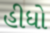
હીધો